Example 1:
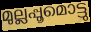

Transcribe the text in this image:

മുല്ലപ്പൂമൊട്ടു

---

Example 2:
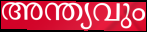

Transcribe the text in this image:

അന്ത്യവും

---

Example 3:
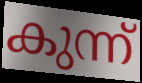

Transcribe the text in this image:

കുന്ന്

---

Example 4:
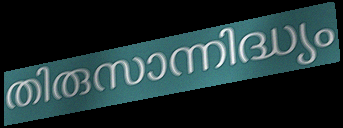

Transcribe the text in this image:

തിരുസാന്നിദ്ധ്യം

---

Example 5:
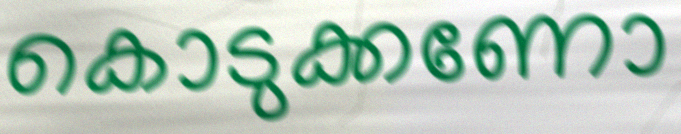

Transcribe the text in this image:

കൊടുക്കണോ